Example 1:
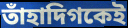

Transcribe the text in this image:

তাঁহাদিগকেই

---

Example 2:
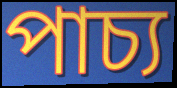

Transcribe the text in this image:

পাচ্য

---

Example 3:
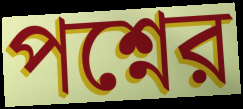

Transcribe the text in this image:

পশ্নের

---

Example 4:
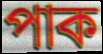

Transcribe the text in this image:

পাক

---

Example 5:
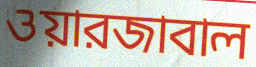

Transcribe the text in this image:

ওয়ারজাবাল